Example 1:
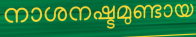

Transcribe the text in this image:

നാശനഷ്ടമുണ്ടായ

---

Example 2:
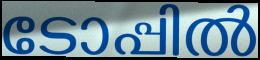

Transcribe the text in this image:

ടോപ്പിൽ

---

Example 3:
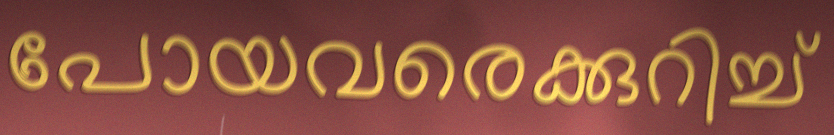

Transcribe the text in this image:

പോയവരെക്കുറിച്ച്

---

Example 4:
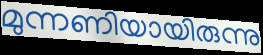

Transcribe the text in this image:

മുന്നണിയായിരുന്നു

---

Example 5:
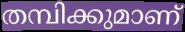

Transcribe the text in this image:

തമ്പിക്കുമാണ്